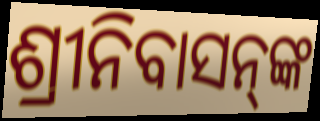
ଶ୍ରୀନିବାସନ୍‌ଙ୍କ